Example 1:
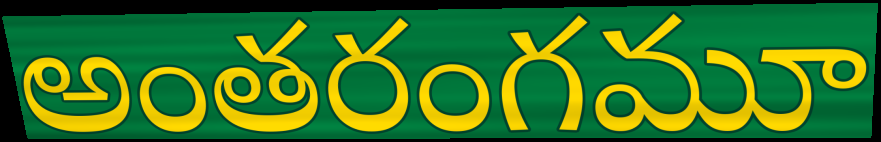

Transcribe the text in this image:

అంతరంగమూ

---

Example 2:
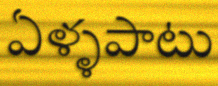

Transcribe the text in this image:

ఏళ్ళపాటు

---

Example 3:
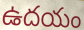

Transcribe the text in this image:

ఉదయం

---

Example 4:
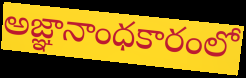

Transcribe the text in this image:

అజ్ఞానాంధకారంలో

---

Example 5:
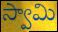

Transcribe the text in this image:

స్వామి